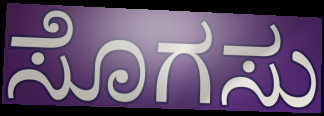
ಸೊಗಸು